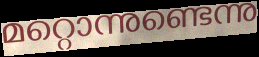
മറ്റൊന്നുണ്ടെന്നു